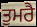
ਤੁਮਰੈ